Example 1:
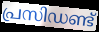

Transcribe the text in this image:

പ്രസിഡണ്ട്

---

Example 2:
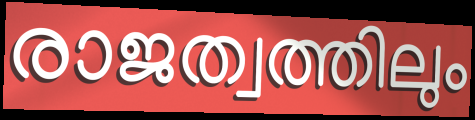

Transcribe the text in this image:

രാജത്വത്തിലും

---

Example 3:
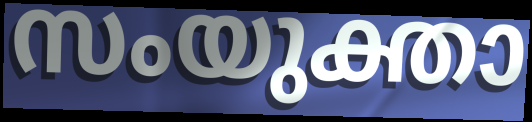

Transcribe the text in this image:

സംയുക്താ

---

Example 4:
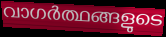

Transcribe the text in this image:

വാഗർത്ഥങ്ങളുടെ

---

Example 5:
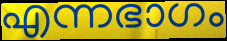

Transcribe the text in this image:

എന്നഭാഗം